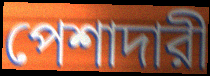
পেশাদারী